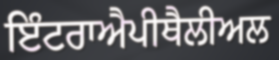
ਇੰਟਰਾਐਪੀਥੈਲੀਅਲ